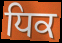
ਧਿਕ